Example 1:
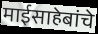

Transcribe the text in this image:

माईसाहेबांचे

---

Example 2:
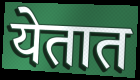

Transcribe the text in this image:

येतात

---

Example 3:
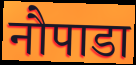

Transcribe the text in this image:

नौपाडा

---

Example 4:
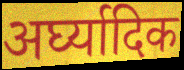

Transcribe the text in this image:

अर्घ्यादिक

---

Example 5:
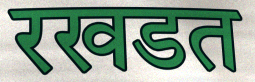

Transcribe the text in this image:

रखडत